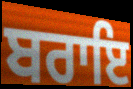
ਬਰਾਇ